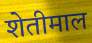
शेतीमाल